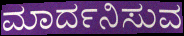
ಮಾರ್ದನಿಸುವ